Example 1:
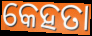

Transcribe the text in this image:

କେହତା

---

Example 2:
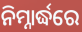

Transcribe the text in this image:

ନିମ୍ନାର୍ଦ୍ଧରେ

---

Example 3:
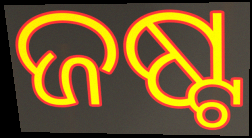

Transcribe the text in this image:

ଜଷ୍ଟ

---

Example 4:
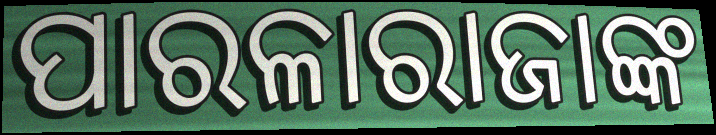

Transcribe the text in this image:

ପାରଳାରାଜାଙ୍କ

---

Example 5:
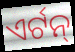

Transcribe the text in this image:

ଏର୍ଟନ୍